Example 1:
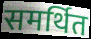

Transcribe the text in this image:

समर्थित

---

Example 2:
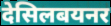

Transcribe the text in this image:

देसिलबयनर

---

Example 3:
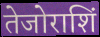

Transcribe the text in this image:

तेजोराशिं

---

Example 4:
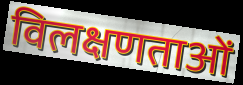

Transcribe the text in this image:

विलक्षणताओं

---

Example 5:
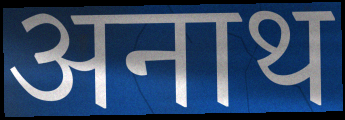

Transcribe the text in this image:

अनाथ